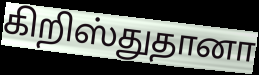
கிறிஸ்துதானா